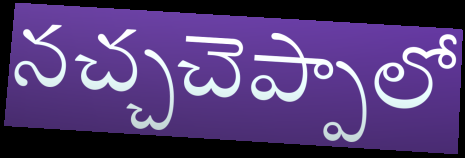
నచ్చచెప్పాలో